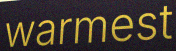
warmest